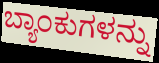
ಬ್ಯಾಂಕುಗಳನ್ನು